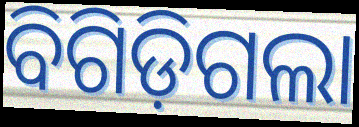
ବିଗିଡ଼ିଗଲା